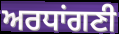
ਅਰਧਾਂਗਣੀ